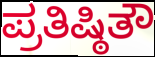
ಪ್ರತಿಷ್ಠಿತೌ